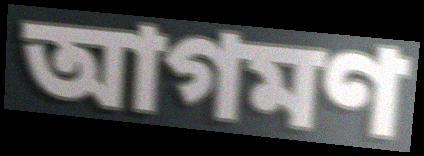
আগমণ